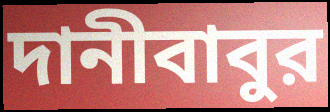
দানীবাবুর